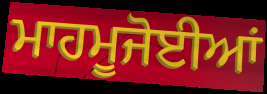
ਮਾਹਮੂਜੋਈਆਂ